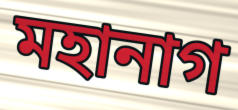
মহানাগ